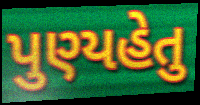
પુણ્યહેતુ